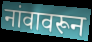
नांवावरून